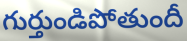
గుర్తుండిపోతుందీ